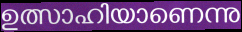
ഉത്സാഹിയാണെന്നു